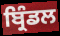
ਬ੍ਰਿੰਡਲ